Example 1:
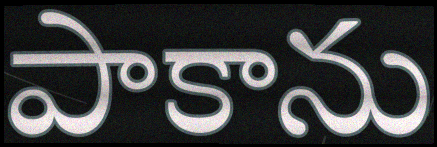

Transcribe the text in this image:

పాకాను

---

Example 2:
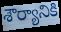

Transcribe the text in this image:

శౌర్యానికి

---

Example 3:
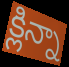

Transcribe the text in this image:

క్లిన్నా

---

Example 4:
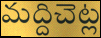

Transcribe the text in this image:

మద్దిచెట్ల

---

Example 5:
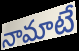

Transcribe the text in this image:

నామాటే